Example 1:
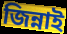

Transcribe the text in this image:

জিন্নাই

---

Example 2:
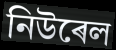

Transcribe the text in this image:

নিউৰেল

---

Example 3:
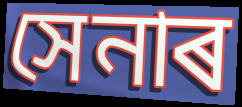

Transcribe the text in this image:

সেনাৰ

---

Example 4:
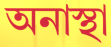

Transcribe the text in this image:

অনাস্থা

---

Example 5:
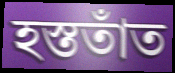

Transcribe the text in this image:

হস্ততাঁত